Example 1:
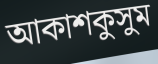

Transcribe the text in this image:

আকাশকুসুম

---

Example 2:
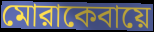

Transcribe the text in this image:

মোরাকেবায়ে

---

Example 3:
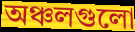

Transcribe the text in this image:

অঞ্চলগুলো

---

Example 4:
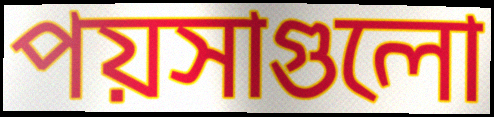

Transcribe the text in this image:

পয়সাগুলো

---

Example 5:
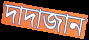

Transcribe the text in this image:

দাদাজান